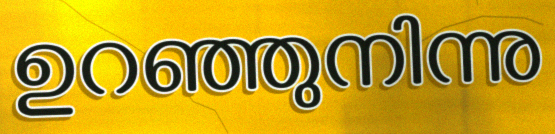
ഉറഞ്ഞുനിന്നു